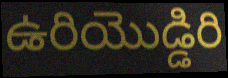
ఉరియొడ్డిరి